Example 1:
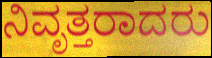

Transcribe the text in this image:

ನಿವೃತ್ತರಾದರು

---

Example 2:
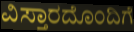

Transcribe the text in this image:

ವಿಸ್ತಾರದೊಂದಿಗೆ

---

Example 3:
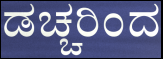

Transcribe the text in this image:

ಡಚ್ಚರಿಂದ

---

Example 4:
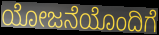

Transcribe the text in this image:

ಯೋಜನೆಯೊಂದಿಗೆ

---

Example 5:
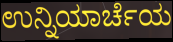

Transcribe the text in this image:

ಉನ್ನಿಯಾರ್ಚೆಯ